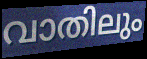
വാതിലും